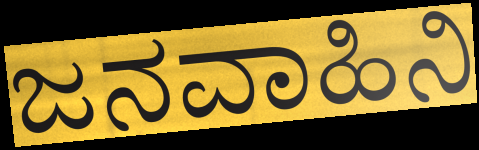
ಜನವಾಹಿನಿ